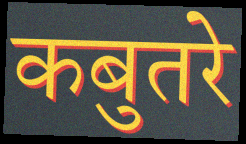
कबुतरे